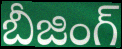
బీజింగ్